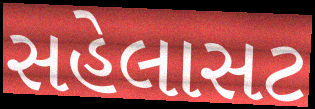
સહેલાસટ